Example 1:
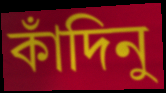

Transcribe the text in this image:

কাঁদিনু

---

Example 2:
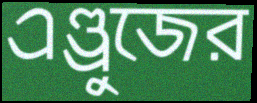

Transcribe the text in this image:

এণ্ড্রুজের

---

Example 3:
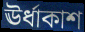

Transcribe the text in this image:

ঊর্ধাকাশ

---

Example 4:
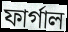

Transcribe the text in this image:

ফার্গাল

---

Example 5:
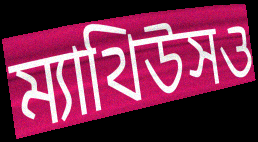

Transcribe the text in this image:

ম্যাথিউসও